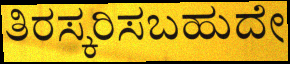
ತಿರಸ್ಕರಿಸಬಹುದೇ